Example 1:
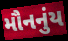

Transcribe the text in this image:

મૌનનુંય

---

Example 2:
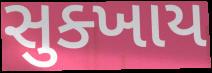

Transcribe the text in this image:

સુક્ખાય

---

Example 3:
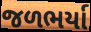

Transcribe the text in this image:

જળભર્યા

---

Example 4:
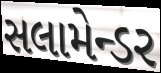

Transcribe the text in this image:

સલામેન્ડર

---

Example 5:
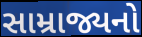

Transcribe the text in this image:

સામ્રાજ્યનો